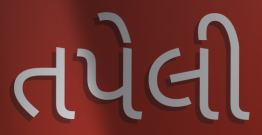
તપેલી